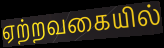
ஏற்றவகையில்